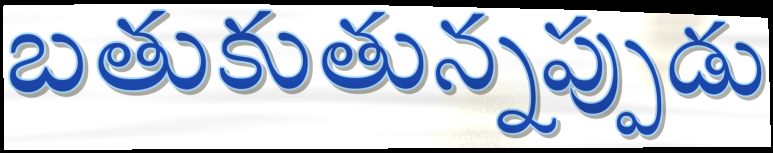
బతుకుతున్నప్పుడు